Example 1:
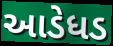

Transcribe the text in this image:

આડેધડ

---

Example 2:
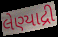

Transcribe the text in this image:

લેણ્યાદ્રી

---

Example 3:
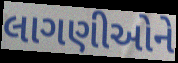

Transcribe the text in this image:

લાગણીઓને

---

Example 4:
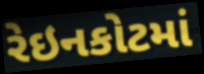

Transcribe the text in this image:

રેઇનકોટમાં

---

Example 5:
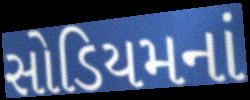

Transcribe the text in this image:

સોડિયમનાં